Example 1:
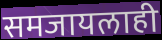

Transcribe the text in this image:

समजायलाही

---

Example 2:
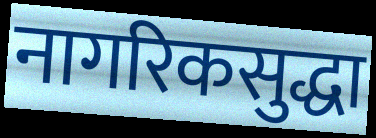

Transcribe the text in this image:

नागरिकसुद्धा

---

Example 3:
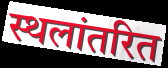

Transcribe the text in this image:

स्थलांतरित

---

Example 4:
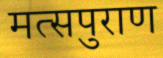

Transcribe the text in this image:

मत्सपुराण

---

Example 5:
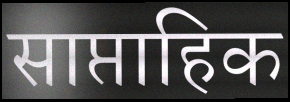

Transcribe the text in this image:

साप्ताहिक